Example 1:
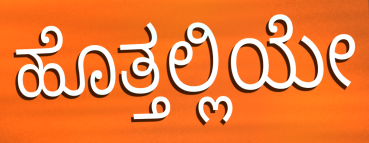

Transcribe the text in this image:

ಹೊತ್ತಲ್ಲಿಯೇ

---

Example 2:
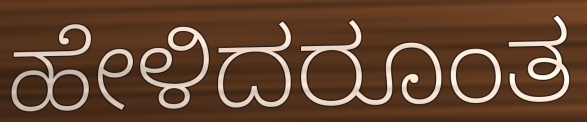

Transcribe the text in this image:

ಹೇಳಿದರೂಂತ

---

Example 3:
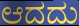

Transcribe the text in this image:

ಆದದು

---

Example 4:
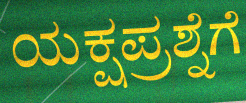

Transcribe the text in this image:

ಯಕ್ಷಪ್ರಶ್ನೆಗೆ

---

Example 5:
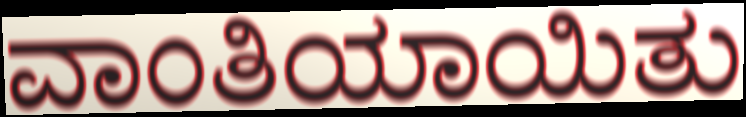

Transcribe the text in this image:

ವಾಂತಿಯಾಯಿತು